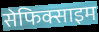
सेफिक्साइम